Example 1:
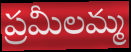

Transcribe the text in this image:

ప్రమీలమ్మ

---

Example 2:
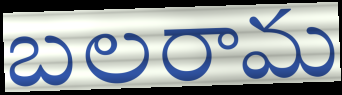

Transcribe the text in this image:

బలరామ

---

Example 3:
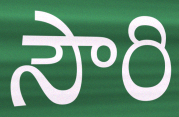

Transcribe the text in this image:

సౌరి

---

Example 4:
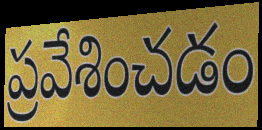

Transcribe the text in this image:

ప్రవేశించడం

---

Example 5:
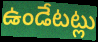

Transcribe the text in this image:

ఉండేటట్లు